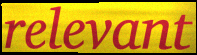
relevant